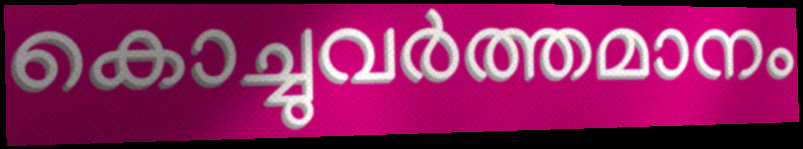
കൊച്ചുവർത്തമാനം